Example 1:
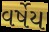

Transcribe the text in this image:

વર્ષેય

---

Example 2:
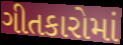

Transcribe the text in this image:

ગીતકારોમાં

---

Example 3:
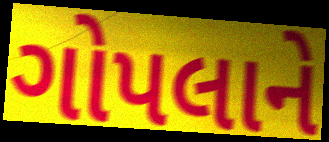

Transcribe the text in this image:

ગોપલાને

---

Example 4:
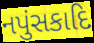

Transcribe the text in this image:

નપુંસકાદિ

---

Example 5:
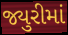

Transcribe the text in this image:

જ્યુરીમાં